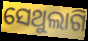
ସେଥୁଲାଗି